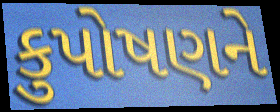
કુપોષણને